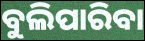
ବୁଲିପାରିବା